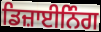
ਡਿਜ਼ਾਈਨਿੰਗ